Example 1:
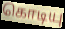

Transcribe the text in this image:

கொடியு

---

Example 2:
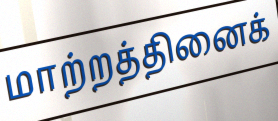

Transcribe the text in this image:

மாற்றத்தினைக்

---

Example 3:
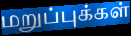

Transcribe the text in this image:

மறுப்புக்கள்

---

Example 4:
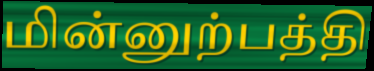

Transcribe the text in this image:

மின்னுற்பத்தி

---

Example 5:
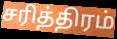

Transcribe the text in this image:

சரித்திரம்